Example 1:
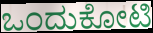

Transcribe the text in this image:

ಒಂದುಕೋಟಿ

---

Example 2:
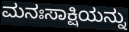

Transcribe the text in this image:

ಮನಃಸಾಕ್ಷಿಯನ್ನು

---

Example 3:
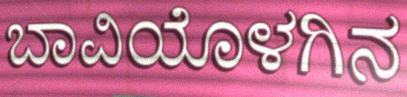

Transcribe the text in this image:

ಬಾವಿಯೊಳಗಿನ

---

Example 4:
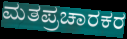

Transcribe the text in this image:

ಮತಪ್ರಚಾರಕರ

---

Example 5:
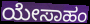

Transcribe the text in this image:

ಯೇಸಾಹಂ